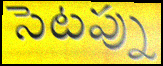
సెటప్ను